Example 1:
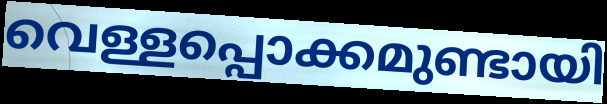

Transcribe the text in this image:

വെള്ളപ്പൊക്കമുണ്ടായി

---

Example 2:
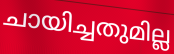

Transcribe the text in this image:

ചായിച്ചതുമില്ല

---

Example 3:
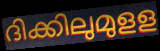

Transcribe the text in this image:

ദിക്കിലുമുളള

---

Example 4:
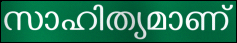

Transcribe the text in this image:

സാഹിത്യമാണ്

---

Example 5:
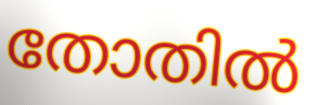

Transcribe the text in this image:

തോതിൽ